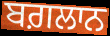
ਬਗ਼ਲਾਨ